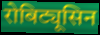
रोबिट्यूसिन